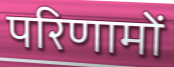
परिणामों